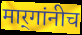
मार्गांनीच